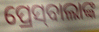
ପ୍ରେସ୍‌ବାଲାଙ୍କ